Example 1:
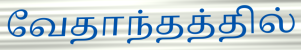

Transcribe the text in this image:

வேதாந்தத்தில்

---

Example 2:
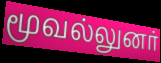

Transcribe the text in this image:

மூவல்லுனர்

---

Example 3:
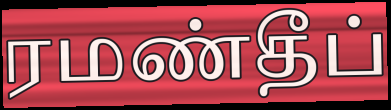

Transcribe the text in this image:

ரமண்தீப்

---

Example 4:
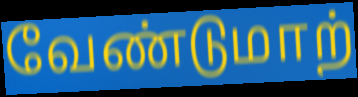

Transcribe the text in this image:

வேண்டுமாற்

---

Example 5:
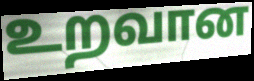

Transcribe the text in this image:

உறவான